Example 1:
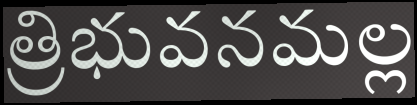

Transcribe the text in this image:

త్రిభువనమల్ల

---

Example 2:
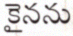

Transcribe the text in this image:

కైనను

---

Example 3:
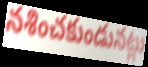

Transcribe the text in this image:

నశించకుండునట్లు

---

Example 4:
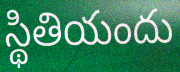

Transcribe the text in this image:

స్థితియందు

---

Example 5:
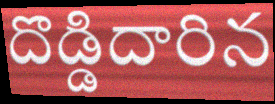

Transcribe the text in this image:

దొడ్డిదారిన